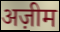
अज़ीम